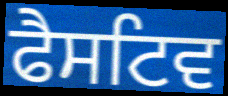
ਫੈਸਟਿਵ